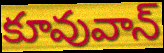
కూవువాన్